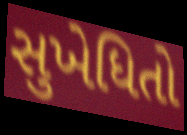
સુખેધિતો